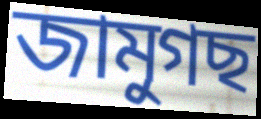
জামুগছ